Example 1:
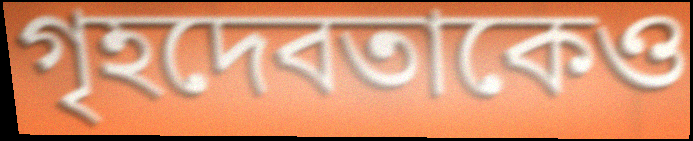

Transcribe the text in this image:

গৃহদেবতাকেও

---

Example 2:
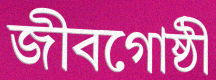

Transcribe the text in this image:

জীবগোষ্ঠী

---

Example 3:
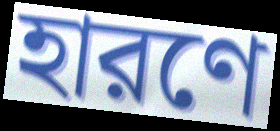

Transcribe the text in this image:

হারণে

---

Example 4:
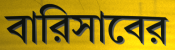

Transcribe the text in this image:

বারিসাবের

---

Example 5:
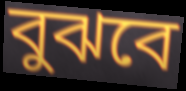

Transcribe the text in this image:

বুঝবে